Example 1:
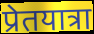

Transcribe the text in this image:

प्रेतयात्रा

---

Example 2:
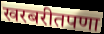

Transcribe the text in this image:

खरबरीतपणा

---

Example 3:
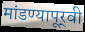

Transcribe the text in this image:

मांडण्यापूर्वी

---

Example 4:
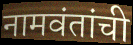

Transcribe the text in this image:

नामवंतांची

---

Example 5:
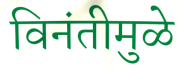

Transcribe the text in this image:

विनंतीमुळे